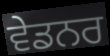
ਵੇਡਨਰ